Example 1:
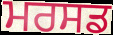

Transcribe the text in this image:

ਮਰਸਡ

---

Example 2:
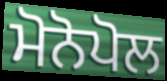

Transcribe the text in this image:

ਮੋਨੋਪੋਲ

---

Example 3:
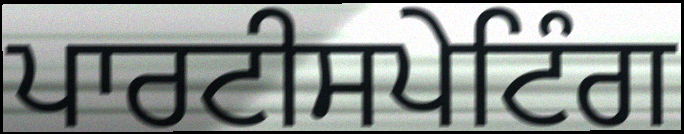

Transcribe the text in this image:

ਪਾਰਟੀਸਪੇਟਿੰਗ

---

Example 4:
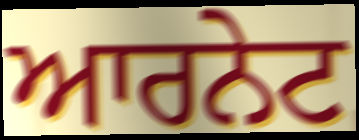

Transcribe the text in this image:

ਆਰਨੇਟ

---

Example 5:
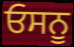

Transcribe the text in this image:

ਓਸਨੂ